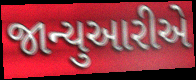
જાન્યુઆરીએ